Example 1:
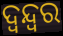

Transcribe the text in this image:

ଦ୍ଵନ୍ଦ୍ୱର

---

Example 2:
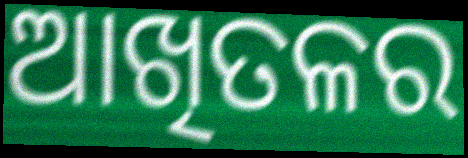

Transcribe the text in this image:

ଆଖିତଳର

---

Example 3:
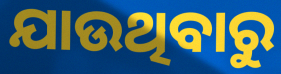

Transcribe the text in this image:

ଯାଉଥିବାରୁ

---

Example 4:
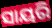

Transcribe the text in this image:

ସାୟରି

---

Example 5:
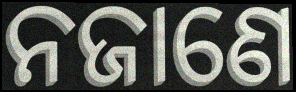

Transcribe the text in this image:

ନଜାଣେ